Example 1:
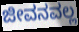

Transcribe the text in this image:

ಜೀವನವಲ್ಲ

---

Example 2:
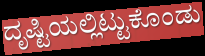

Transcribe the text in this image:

ದೃಷ್ಟಿಯಲ್ಲಿಟ್ಟುಕೊಂಡು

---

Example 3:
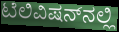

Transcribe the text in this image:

ಟೆಲಿವಿಷನ್‌ನಲ್ಲಿ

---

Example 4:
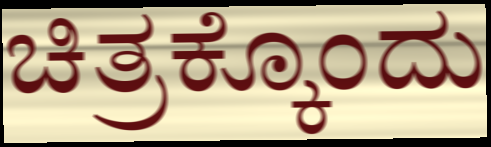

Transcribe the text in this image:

ಚಿತ್ರಕ್ಕೊಂದು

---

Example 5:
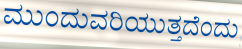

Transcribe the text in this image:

ಮುಂದುವರಿಯುತ್ತದೆಂದು